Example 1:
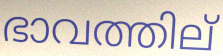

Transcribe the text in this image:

ഭാവത്തില്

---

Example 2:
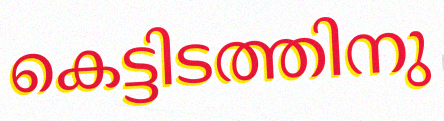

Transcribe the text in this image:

കെട്ടിടത്തിനു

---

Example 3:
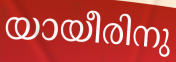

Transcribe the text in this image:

യായീരിനു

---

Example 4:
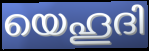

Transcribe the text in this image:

യെഹൂദി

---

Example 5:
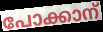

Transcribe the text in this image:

പോക്കാന്